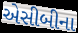
એસીબીના